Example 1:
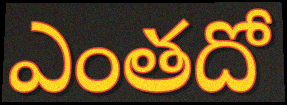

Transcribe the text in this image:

ఎంతదో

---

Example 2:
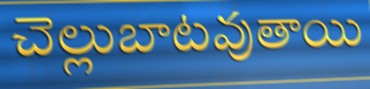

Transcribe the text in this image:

చెల్లుబాటవుతాయి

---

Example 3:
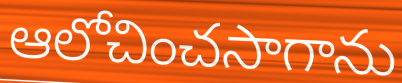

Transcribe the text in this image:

ఆలోచించసాగాను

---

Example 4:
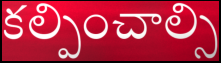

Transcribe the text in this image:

కల్పించాల్సి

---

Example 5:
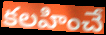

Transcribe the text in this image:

కలహించే